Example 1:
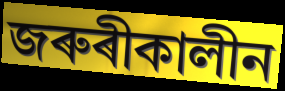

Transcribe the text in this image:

জৰুৰীকালীন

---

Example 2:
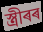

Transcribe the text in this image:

স্ত্ৰীৰৰ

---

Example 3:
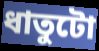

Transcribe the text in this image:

ধাতুটো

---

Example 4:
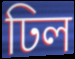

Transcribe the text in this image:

ঢিল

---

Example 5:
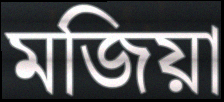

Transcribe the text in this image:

মজিয়া